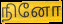
நினோ